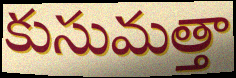
కుసుమత్తా